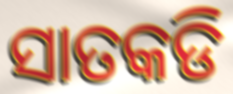
ସାତକଡି